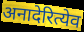
अनादेरित्येव